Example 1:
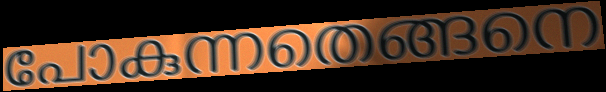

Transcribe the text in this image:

പോകുന്നതെങ്ങനെ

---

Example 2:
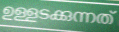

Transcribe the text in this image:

ഉള്ളടക്കുന്നത്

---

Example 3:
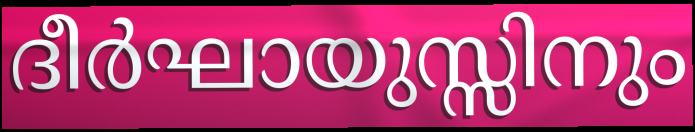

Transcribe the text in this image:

ദീർഘായുസ്സിനും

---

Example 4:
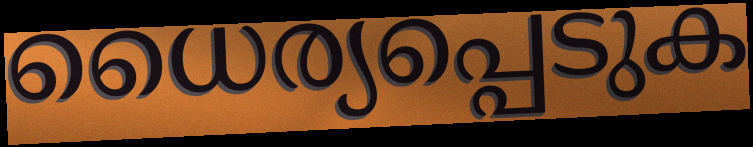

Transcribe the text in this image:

ധൈര്യപ്പെടുക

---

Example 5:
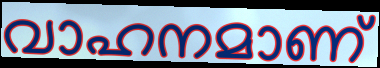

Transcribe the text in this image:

വാഹനമാണ്